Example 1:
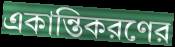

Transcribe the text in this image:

একান্তিকরণের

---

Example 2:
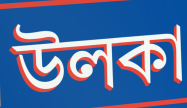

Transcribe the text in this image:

উলকা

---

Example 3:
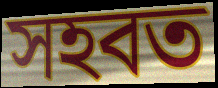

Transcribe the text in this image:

সহবত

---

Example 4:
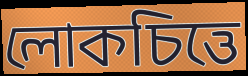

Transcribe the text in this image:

লোকচিত্তে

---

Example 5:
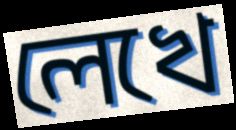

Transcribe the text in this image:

লেখে